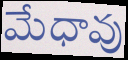
మేధావు